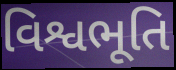
વિશ્વભૂતિ